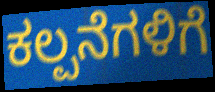
ಕಲ್ಪನೆಗಳಿಗೆ